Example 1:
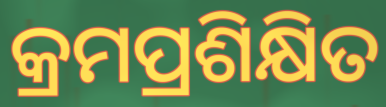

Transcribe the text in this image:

କ୍ରମପ୍ରଶିକ୍ଷିତ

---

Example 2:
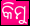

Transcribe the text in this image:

କିମୁ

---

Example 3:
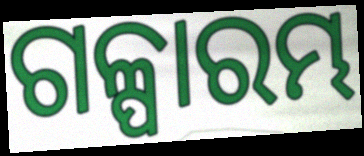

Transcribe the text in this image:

ଗଳ୍ପାରମ୍ଭ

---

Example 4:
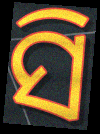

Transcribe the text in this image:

ସି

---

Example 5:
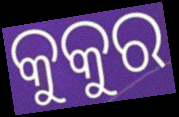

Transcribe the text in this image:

କୁକୁର